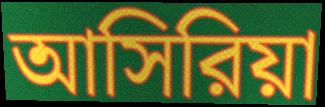
আসিরিয়া